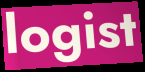
logist